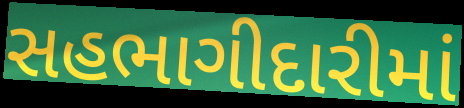
સહભાગીદારીમાં